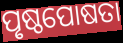
ପୃଷ୍ଠପୋଷତା